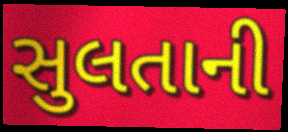
સુલતાની